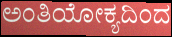
ಅಂತಿಯೋಕ್ಯದಿಂದ